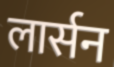
लार्सन